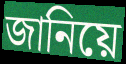
জানিয়ে